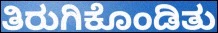
ತಿರುಗಿಕೊಂಡಿತು